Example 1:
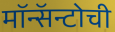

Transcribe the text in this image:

मॉन्सॅन्टोची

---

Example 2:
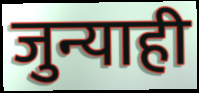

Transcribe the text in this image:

जुन्याही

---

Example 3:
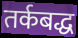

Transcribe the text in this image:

तर्कबद्ध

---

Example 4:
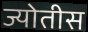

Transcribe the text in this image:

ज्योतीस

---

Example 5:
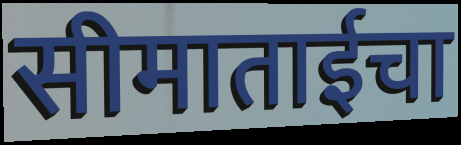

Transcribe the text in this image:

सीमाताईचा